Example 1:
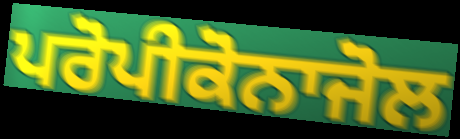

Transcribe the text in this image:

ਪਰੋਪੀਕੋਨਾਜੋਲ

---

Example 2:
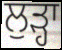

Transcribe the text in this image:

ਲੁੜ੍ਹਾ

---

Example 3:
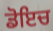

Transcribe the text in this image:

ਡੋਇਚ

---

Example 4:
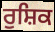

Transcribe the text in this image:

ਰੁਸ਼ਿਕ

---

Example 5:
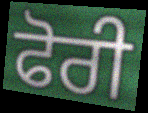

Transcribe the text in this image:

ਫੋਰੀ